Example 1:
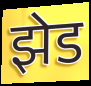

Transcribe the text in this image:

झेड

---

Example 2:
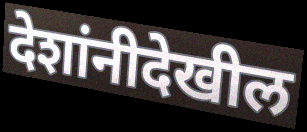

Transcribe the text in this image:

देशांनीदेखील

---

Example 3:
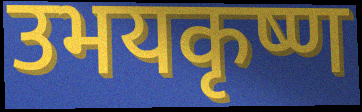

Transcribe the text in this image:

उभयकृष्ण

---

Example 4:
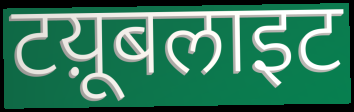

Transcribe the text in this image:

टय़ूबलाइट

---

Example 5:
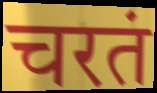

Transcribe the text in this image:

चरतं